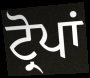
ਟ੍ਰੋਪਾਂ